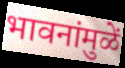
भावनांमुळें